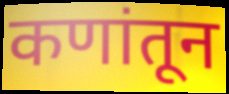
कणांतून